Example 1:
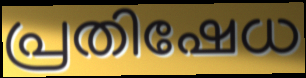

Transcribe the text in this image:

പ്രതിഷേധ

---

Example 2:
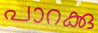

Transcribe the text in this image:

പാറക്കു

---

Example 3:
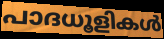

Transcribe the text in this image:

പാദധൂളികൾ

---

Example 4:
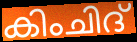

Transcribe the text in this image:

കിംചിദ്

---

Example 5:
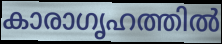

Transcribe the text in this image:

കാരാഗൃഹത്തിൽ